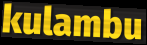
kulambu